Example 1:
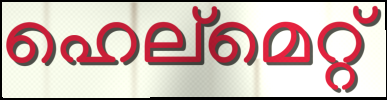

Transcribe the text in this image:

ഹെല്മെറ്റ്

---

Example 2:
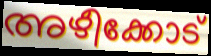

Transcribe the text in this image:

അഴീക്കോട്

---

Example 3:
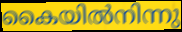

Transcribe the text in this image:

കൈയിൽനിന്നു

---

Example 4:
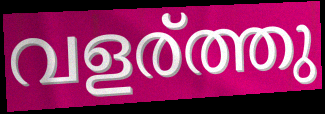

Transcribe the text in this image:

വളര്ത്തു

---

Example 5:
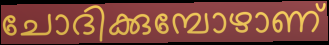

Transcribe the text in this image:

ചോദിക്കുമ്പോഴാണ്